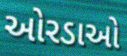
ઓરડાઓ